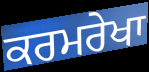
ਕਰਮਰੇਖਾ